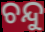
ଚନ୍ଦୁ